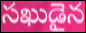
సఖుడైన